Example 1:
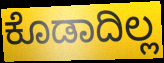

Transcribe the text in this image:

ಕೊಡಾದಿಲ್ಲ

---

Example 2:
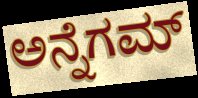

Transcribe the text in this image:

ಅನ್ನೆಗಮ್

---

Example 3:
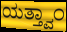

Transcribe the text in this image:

ಯತ್ತ್ವಾಂ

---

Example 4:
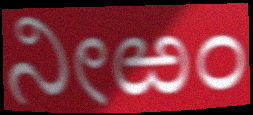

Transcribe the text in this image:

ನೀಱಂ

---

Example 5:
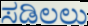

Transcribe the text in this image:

ಸಡಿಲಲು